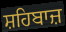
ਸ਼ਹਿਬਾਜ਼